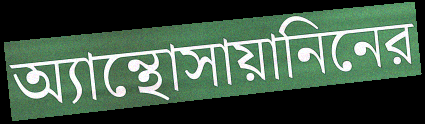
অ্যান্থোসায়ানিনের